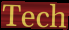
Tech